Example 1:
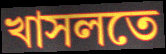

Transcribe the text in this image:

খাসলতে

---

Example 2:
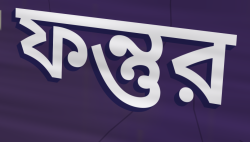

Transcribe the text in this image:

ফন্তুর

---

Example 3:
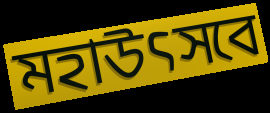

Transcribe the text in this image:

মহাউৎসবে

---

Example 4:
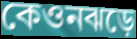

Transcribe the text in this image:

কেওনঝড়ে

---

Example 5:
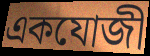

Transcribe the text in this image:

একযোজী